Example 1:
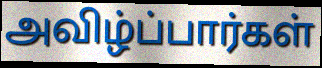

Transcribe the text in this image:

அவிழ்ப்பார்கள்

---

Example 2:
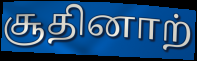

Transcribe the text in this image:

சூதினாற்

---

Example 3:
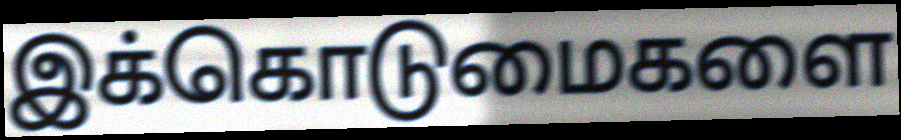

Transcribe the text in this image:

இக்கொடுமைகளை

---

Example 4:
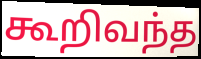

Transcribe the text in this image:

கூறிவந்த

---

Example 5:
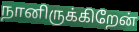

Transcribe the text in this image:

நானிருக்கிறேன்